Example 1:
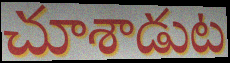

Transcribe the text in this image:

చూశాడుట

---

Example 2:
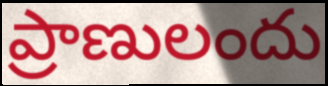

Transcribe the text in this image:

ప్రాణులందు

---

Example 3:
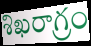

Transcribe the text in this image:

శిఖరాగ్రం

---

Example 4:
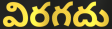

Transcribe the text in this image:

విరగదు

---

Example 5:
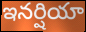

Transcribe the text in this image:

ఇనర్షియా